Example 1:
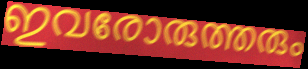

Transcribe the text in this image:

ഇവരോരുത്തരും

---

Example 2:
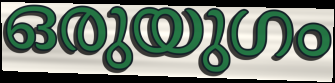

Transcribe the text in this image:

ഒരുയുഗം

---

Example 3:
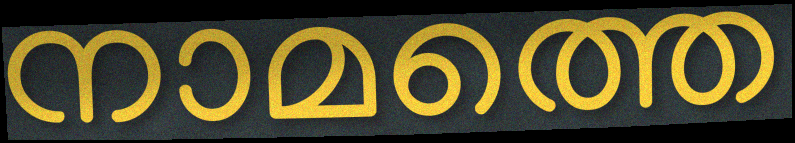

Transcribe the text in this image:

നാമത്തെ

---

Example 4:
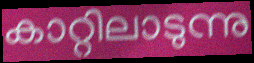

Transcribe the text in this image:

കാറ്റിലാടുന്നു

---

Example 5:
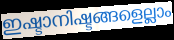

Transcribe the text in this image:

ഇഷ്ടാനിഷ്ടങ്ങളെല്ലാം